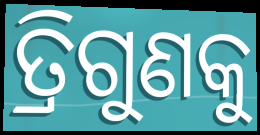
ତ୍ରିଗୁଣକୁ